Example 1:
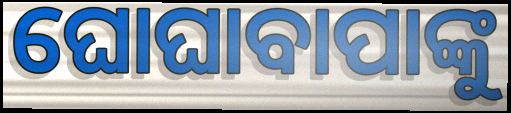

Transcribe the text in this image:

ଘୋଘାବାପାଙ୍କୁ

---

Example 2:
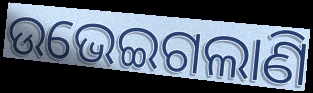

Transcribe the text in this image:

ଉଭେଇଗଲାଣି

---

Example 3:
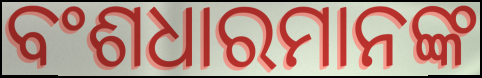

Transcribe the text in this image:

ବଂଶଧାରମାନଙ୍କ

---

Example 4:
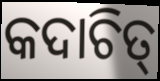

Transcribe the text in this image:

କଦାଚିତ୍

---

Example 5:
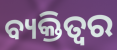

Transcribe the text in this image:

ବ୍ୟକ୍ତିତ୍ବର